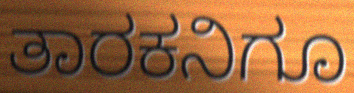
ತಾರಕನಿಗೂ